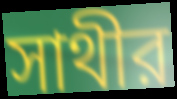
সাথীর